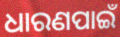
ଧାରଣପାଇଁ